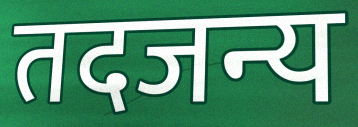
तदजन्य